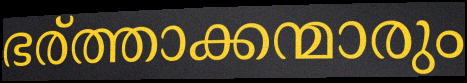
ഭര്ത്താക്കന്മാരും